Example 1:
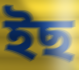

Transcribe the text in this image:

ইছ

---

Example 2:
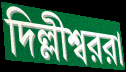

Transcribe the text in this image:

দিল্লীশ্বররা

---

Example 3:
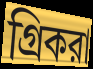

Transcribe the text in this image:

গ্রিকরা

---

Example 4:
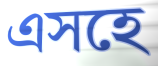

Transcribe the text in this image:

এসহে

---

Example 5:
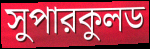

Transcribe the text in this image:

সুপারকুলড